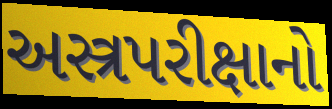
અસ્ત્રપરીક્ષાનો